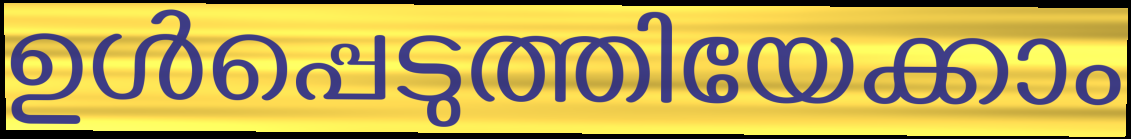
ഉൾപ്പെടുത്തിയേക്കാം